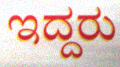
ಇದ್ದರು